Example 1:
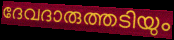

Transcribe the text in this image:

ദേവദാരുത്തടിയും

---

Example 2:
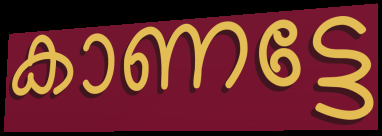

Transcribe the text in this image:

കാണട്ടേ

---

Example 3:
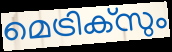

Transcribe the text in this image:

മെട്രിക്സും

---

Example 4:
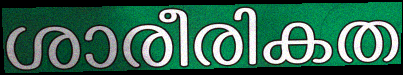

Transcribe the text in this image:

ശാരീരികത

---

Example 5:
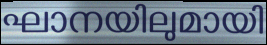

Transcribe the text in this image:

ഘാനയിലുമായി